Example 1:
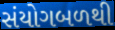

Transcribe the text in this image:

સંયોગબળથી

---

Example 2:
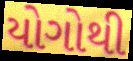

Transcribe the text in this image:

યોગોથી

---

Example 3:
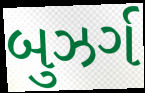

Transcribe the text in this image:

બુઝર્ગ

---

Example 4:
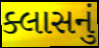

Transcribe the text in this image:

ક્લાસનું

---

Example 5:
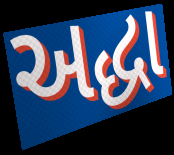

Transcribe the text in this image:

અદ્ધા